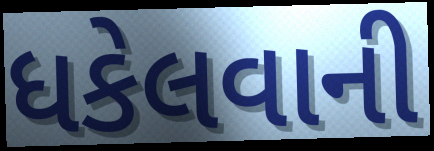
ધકેલવાની